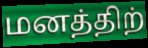
மனத்திற்